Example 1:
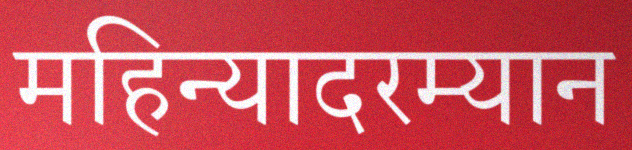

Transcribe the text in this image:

महिन्यादरम्यान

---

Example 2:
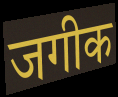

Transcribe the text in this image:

जगीक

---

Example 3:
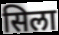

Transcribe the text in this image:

सिला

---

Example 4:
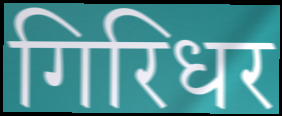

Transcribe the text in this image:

गिरिधर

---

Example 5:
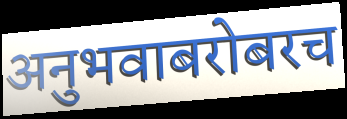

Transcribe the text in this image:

अनुभवाबरोबरच